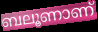
ബലൂണാണ്